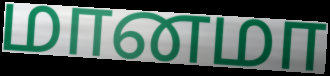
மானமா